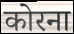
कोरना